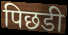
पिछडी